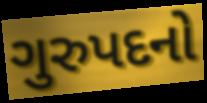
ગુરુપદનો